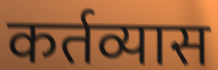
कर्तव्यास